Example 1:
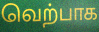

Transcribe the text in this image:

வெற்பாக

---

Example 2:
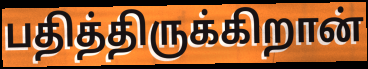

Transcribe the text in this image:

பதித்திருக்கிறான்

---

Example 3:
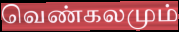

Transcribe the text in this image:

வெண்கலமும்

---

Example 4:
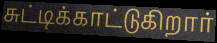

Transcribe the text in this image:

சுட்டிக்காட்டுகிறார்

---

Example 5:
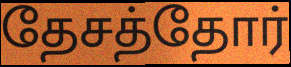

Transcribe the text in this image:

தேசத்தோர்